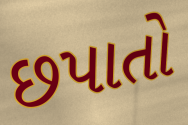
છપાતો